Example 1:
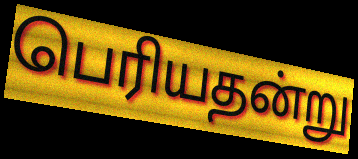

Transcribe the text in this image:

பெரியதன்று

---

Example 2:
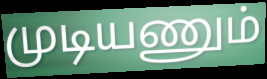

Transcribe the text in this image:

முடியணும்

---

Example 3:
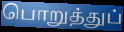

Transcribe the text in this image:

பொறுத்துப்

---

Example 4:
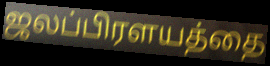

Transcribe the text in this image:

ஜலப்பிரளயத்தை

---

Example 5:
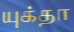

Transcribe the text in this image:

யுக்தா